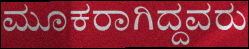
ಮೂಕರಾಗಿದ್ದವರು